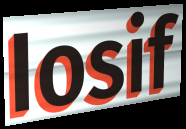
Iosif